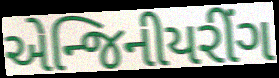
એન્જિનીયરીંગ